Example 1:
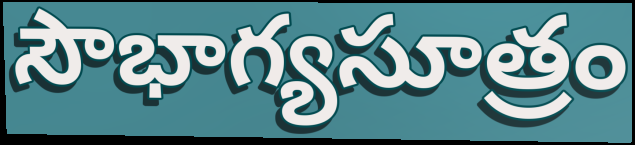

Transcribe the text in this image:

సౌభాగ్యసూత్రం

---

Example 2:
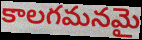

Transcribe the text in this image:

కాలగమనమై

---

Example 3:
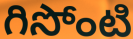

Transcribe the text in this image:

గిసోంటి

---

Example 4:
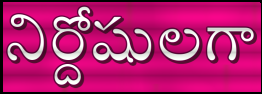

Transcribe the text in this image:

నిర్దోషులగా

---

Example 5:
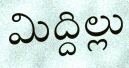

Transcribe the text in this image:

మిద్దిల్లు